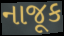
નાજૂક